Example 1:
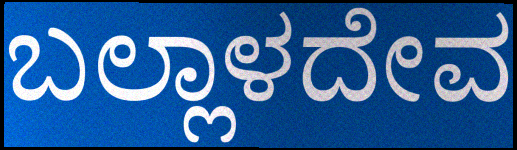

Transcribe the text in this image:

ಬಲ್ಲಾಳದೇವ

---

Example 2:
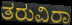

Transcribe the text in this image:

ತರುವಿರಾ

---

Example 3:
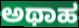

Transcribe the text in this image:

ಅಥಾಹ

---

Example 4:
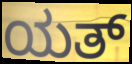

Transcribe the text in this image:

ಯತ್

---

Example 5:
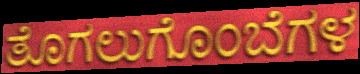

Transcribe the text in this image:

ತೊಗಲುಗೊಂಬೆಗಳ